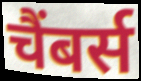
चैंबर्स